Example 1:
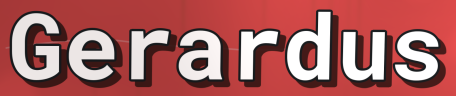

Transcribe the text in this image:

Gerardus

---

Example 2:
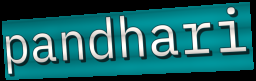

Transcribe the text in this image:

pandhari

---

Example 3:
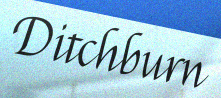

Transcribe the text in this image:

Ditchburn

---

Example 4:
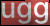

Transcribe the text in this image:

ugg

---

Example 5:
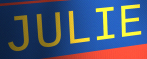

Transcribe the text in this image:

JULIE